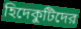
হিদেকুটিদের